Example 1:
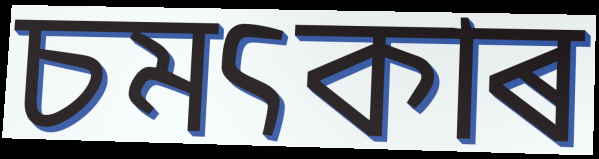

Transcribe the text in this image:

চমৎকাৰ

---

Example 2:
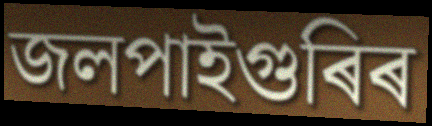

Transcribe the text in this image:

জলপাইগুৰিৰ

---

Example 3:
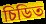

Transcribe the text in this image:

চিডিত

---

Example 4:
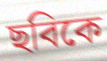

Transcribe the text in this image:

ছবিকে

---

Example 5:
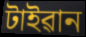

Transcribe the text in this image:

টাইৱান